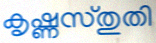
കൃഷ്ണസ്തുതി